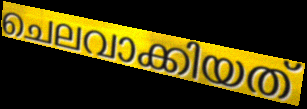
ചെലവാക്കിയത്